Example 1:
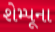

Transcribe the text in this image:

શેમ્પૂના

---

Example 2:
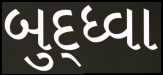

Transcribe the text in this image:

બુદ્ધ્વા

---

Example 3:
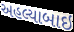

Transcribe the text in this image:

અહલ્યાબાઇ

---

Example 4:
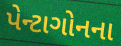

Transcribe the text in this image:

પેન્ટાગોનના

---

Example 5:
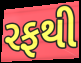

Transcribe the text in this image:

રફથી